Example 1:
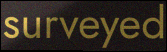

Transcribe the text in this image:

surveyed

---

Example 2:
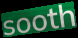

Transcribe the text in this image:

sooth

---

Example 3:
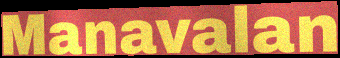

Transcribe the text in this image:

Manavalan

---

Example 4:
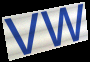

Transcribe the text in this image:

VW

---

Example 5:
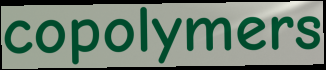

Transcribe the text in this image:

copolymers